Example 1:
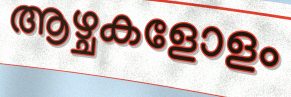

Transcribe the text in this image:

ആഴ്ചകളോളം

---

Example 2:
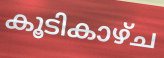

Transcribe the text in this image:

കൂടികാഴ്ച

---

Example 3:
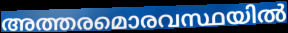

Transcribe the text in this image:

അത്തരമൊരവസ്ഥയിൽ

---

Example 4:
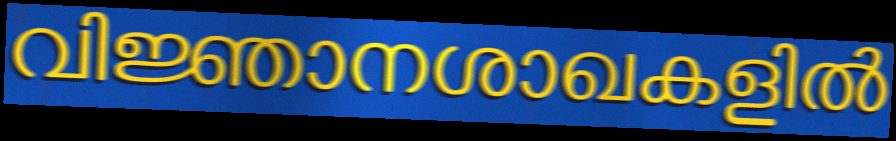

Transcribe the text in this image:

വിജ്ഞാനശാഖകളിൽ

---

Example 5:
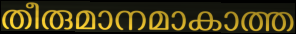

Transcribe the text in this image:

തീരുമാനമാകാത്ത